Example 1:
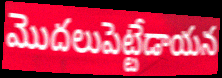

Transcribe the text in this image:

మొదలుపెట్టేడాయన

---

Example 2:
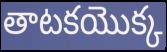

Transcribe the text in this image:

తాటకయొక్క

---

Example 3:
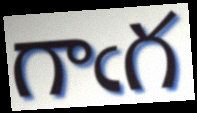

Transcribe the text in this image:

గాఁగ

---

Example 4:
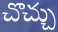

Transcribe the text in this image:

చొచ్చు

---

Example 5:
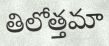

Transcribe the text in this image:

తిలోత్తమా